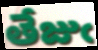
తేజుఁ